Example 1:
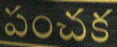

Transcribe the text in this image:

పంచక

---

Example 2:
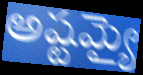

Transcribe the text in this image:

అష్టమ్యై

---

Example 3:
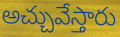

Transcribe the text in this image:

అచ్చువేస్తారు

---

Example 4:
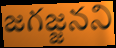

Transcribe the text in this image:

జగజ్జనని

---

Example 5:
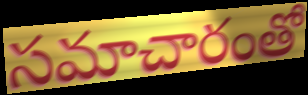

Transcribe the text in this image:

సమాచారంతో